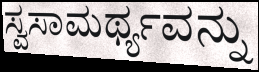
ಸ್ವಸಾಮರ್ಥ್ಯವನ್ನು